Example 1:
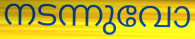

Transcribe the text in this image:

നടന്നുവോ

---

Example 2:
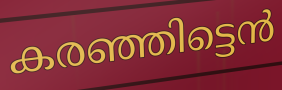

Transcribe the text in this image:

കരഞ്ഞിട്ടെൻ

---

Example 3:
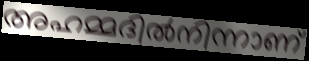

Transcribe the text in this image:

അഹമ്മദിൽനിന്നാണ്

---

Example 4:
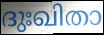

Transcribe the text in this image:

ദുഃഖിതാ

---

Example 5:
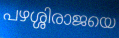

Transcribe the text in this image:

പഴശ്ശിരാജയെ